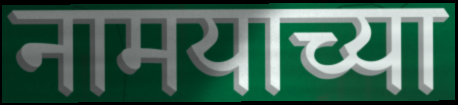
नामयाच्या